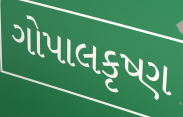
ગોપાલકૃષ્ણ